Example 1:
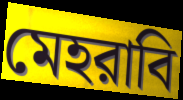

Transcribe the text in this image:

মেহরাবি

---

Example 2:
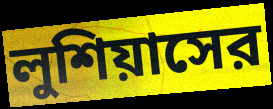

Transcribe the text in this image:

লুশিয়াসের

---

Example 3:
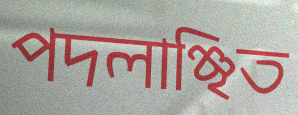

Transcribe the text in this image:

পদলাঞ্ছিত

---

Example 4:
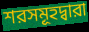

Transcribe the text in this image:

শরসমূহদ্বারা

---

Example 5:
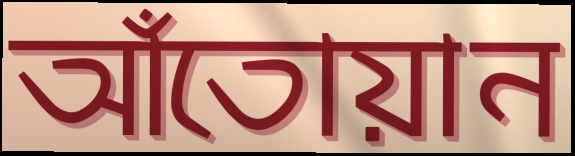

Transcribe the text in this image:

আঁতোয়ান